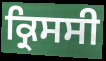
ਕ੍ਰਿਸਸੀ